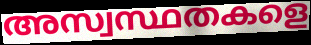
അസ്വസ്ഥതകളെ